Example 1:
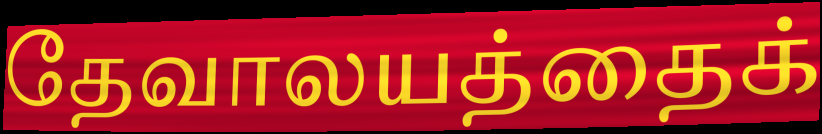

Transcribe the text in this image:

தேவாலயத்தைக்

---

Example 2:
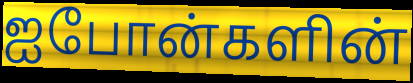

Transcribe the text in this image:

ஐபோன்களின்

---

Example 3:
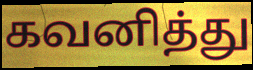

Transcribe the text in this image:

கவனித்து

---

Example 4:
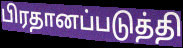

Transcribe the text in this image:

பிரதானப்படுத்தி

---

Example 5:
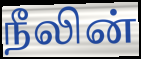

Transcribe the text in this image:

நீலின்